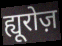
ह्यूरोज़